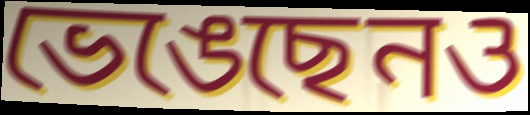
ভেঙেছেনও